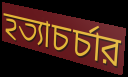
হত্যাচর্চার